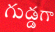
గుడ్డగా